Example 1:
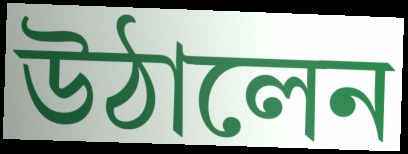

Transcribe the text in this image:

উঠালেন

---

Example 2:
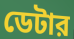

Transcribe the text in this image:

ডেটার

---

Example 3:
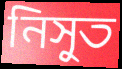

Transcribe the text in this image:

নিসুত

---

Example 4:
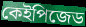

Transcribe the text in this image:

কেইপিজেড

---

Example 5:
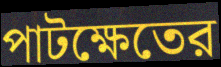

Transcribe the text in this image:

পাটক্ষেতের